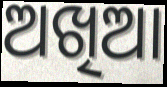
ଅଖିଆ